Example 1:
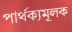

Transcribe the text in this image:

পাৰ্থক্যমূলক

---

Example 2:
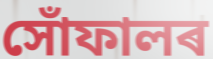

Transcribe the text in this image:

সোঁফালৰ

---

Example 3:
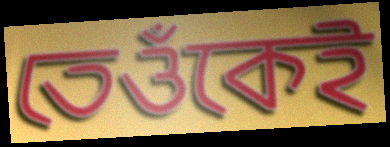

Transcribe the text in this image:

তেওঁকেই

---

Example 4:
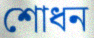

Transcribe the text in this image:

শোধন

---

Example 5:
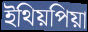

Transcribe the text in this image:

ইথিয়পিয়া